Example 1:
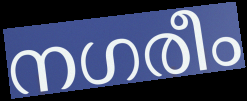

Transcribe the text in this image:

നഗരീം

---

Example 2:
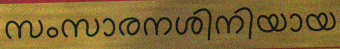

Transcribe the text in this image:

സംസാരനശിനിയായ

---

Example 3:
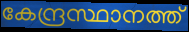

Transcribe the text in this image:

കേന്ദ്രസ്ഥാനത്ത്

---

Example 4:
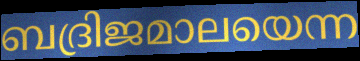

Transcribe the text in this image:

ബദ്രിജമാലയെന്ന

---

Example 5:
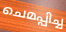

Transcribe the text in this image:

ചെമപ്പിച്ച